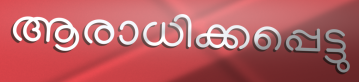
ആരാധിക്കപ്പെട്ടു